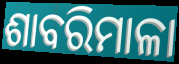
ଶାବରିମାଳା